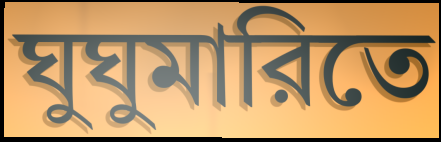
ঘুঘুমারিতে